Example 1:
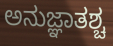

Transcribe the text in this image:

ಅನುಜ್ಞಾತಶ್ಚ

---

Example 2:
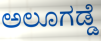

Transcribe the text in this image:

ಅಲೂಗಡ್ಡೆ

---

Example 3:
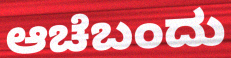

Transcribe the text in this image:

ಆಚೆಬಂದು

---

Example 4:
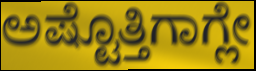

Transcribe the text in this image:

ಅಷ್ಟೊತ್ತಿಗಾಗ್ಲೇ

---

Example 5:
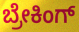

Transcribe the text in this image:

ಬ್ರೇಕಿಂಗ್